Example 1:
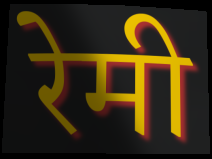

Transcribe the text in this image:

रेमी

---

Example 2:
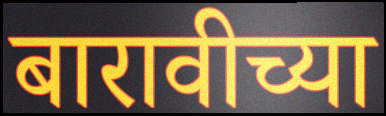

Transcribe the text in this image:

बारावीच्या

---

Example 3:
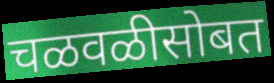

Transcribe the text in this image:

चळवळीसोबत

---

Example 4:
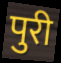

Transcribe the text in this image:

पुरी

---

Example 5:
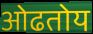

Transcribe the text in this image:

ओढतोय